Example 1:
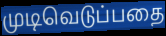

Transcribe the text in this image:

முடிவெடுப்பதை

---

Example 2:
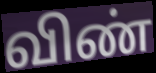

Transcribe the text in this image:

விண்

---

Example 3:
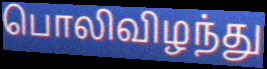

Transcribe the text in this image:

பொலிவிழந்து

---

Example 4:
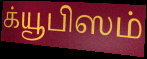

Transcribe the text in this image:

க்யூபிஸம்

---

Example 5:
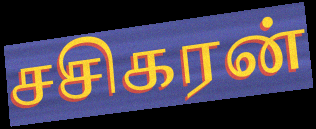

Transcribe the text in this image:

சசிகரன்